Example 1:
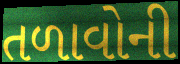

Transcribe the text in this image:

તળાવોની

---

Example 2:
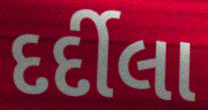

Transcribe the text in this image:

દર્દીલા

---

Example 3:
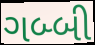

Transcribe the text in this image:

ગબ્બી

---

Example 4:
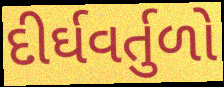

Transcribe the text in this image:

દીર્ઘવર્તુળો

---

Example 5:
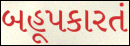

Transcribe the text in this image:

બહૂપકારતં